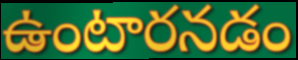
ఉంటారనడం